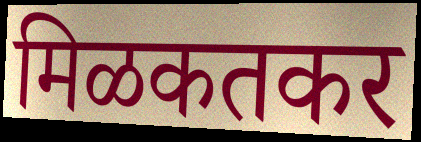
मिळकतकर